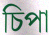
চিপা